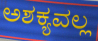
ಅಶಕ್ಯವಲ್ಲ